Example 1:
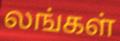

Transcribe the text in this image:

லங்கள்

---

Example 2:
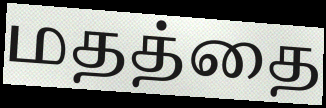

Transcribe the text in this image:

மதத்தை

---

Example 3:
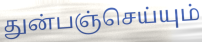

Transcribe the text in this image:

துன்பஞ்செய்யும்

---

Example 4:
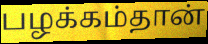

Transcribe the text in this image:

பழக்கம்தான்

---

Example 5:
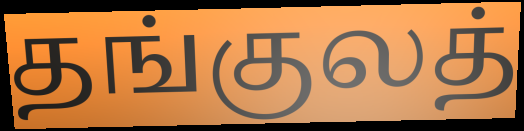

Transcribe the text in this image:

தங்குலத்